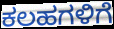
ಕಲಹಗಳಿಗೆ